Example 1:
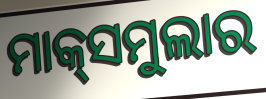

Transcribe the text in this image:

ମାକ୍‌ସମୁଲାର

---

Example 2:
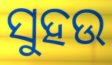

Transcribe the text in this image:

ସୁହଉ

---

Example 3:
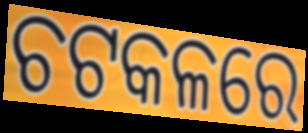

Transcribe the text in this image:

ଚଟକଳରେ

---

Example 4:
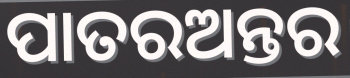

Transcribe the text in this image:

ପାତରଅନ୍ତର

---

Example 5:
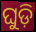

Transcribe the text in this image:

ଘୁଡ଼ି